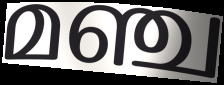
മഞ്ച